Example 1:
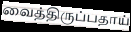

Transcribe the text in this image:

வைத்திருப்பதாய்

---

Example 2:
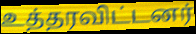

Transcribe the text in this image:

உத்தரவிட்டனர்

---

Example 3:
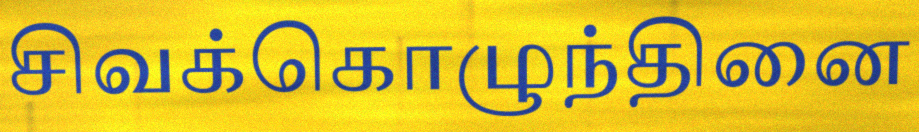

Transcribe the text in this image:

சிவக்கொழுந்தினை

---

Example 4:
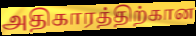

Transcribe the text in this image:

அதிகாரத்திற்கான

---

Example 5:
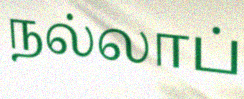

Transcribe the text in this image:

நல்லாப்